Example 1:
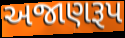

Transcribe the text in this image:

અજાણરૂપ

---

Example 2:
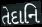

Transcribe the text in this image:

તેદાનિ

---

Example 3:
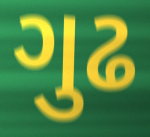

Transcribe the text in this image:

ગુઢ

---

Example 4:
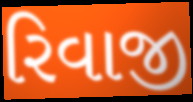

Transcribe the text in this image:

રિવાજી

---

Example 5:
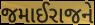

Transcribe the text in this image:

જમાઈરાજને